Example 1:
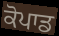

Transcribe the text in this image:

ਕੋਪਾਡ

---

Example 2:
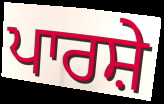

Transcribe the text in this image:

ਪਾਰਸ਼ੇ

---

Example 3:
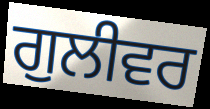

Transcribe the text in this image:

ਗੁਲੀਵਰ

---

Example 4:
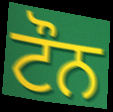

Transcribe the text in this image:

ਟੌਨ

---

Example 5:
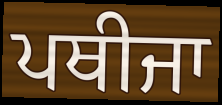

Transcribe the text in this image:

ਪਥੀਜਾ